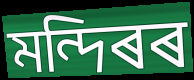
মন্দিৰৰ